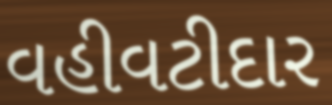
વહીવટીદાર